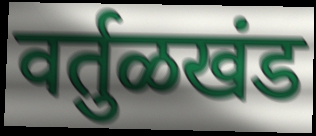
वर्तुळखंड